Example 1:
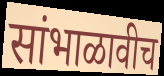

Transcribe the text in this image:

सांभाळावीच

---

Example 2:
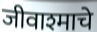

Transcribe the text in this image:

जीवाश्माचे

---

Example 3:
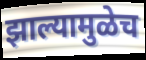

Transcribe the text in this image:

झाल्यामुळेच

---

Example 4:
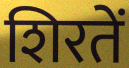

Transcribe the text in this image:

शिरतें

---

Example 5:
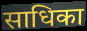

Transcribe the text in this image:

साधिका